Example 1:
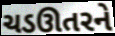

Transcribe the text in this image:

ચડઊતરને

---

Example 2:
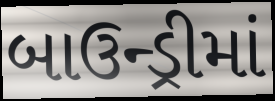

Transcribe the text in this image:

બાઉન્ડ્રીમાં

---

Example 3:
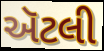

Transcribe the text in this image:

ઍટલી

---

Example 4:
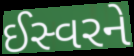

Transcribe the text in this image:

ઈસ્વરને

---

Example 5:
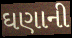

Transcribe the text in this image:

ઘણાની